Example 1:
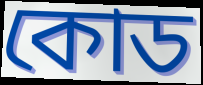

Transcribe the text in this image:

কোড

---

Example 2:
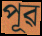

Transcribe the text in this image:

পূৱ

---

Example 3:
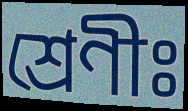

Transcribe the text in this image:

শ্ৰেণীঃ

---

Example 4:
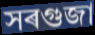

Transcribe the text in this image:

সৰগুজা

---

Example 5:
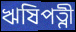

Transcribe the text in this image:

ঋষিপত্নী